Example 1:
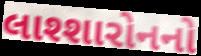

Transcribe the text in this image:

લાશ્શારોનનો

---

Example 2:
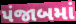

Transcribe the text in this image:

પંજાબમાં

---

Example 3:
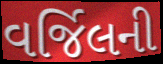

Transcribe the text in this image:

વર્જિલની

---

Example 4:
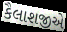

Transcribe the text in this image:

કૈલાશજીએ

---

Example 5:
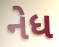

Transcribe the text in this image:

નેધ